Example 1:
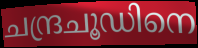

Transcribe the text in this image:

ചന്ദ്രചൂഡിനെ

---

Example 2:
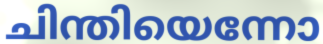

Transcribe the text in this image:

ചിന്തിയെന്നോ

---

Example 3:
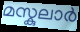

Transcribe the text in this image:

മസ്കുലാർ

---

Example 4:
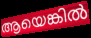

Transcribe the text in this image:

ആയെങ്കിൽ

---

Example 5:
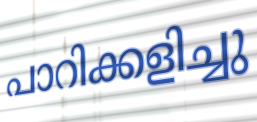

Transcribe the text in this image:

പാറിക്കളിച്ചു